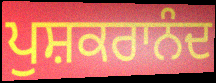
ਪੁਸ਼ਕਰਾਨੰਦ